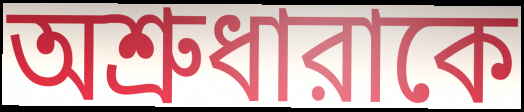
অশ্রুধারাকে